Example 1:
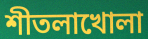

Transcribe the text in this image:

শীতলাখোলা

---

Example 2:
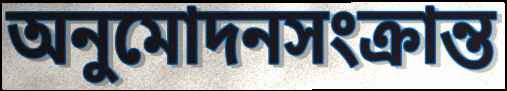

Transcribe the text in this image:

অনুমোদনসংক্রান্ত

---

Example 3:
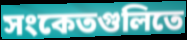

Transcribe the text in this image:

সংকেতগুলিতে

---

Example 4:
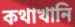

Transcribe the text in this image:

কথাখানি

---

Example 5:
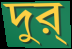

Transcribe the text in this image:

দুর্